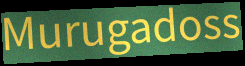
Murugadoss